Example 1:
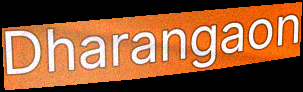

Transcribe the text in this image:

Dharangaon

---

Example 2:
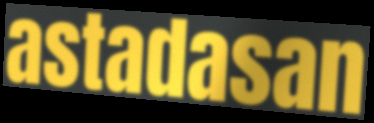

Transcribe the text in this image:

astadasan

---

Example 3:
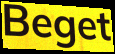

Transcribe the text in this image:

Beget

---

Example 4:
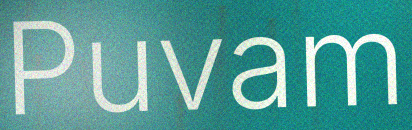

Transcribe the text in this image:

Puvam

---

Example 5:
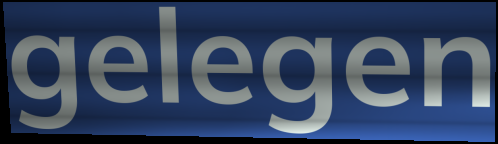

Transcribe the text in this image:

gelegen